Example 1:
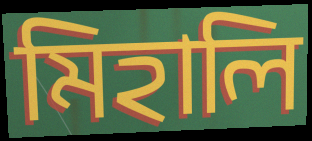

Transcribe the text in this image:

মিহালি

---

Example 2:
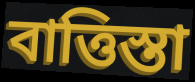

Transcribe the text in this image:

বাত্তিস্তা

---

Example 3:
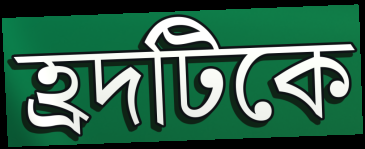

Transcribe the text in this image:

হ্রদটিকে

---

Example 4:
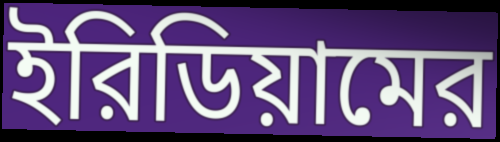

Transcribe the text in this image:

ইরিডিয়ামের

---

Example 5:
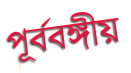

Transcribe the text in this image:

পূর্ববঙ্গীয়